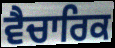
ਵੈਚਾਰਿਕ